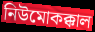
নিউমোকক্কাল